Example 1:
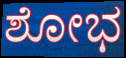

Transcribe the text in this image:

ಶೋಭ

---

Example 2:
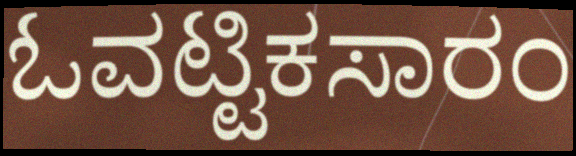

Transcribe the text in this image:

ಓವಟ್ಟಿಕಸಾರಂ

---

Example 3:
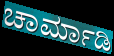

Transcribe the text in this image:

ಚಾರ್ಮಾಡಿ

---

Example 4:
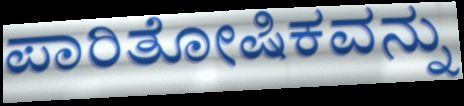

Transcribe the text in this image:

ಪಾರಿತೋಷಿಕವನ್ನು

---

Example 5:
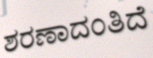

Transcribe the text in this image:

ಶರಣಾದಂತಿದೆ